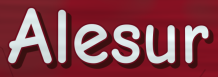
Alesur